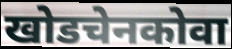
खोडचेनकोवा